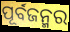
ପୂର୍ବଜନ୍ମର